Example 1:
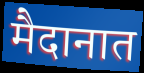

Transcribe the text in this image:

मैदानात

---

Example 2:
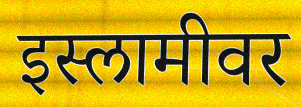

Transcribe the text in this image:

इस्लामीवर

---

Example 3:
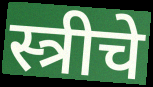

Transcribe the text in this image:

स्त्रीचे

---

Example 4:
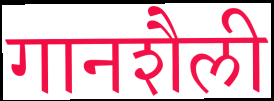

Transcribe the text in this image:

गानशैली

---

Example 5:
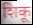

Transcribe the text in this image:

शिकू